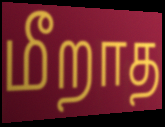
மீறாத